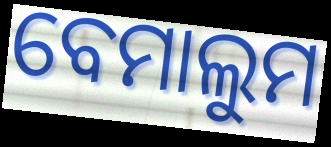
ବେମାଲୁମ